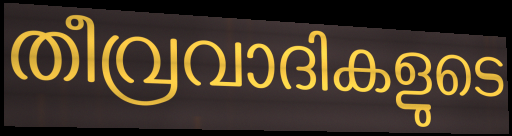
തീവ്രവാദികളുടെ